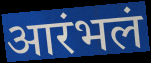
आरंभलं